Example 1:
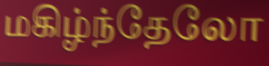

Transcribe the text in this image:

மகிழ்ந்தேலோ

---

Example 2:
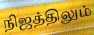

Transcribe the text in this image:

நிஜத்திலும்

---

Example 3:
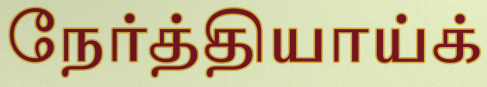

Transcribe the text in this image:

நேர்த்தியாய்க்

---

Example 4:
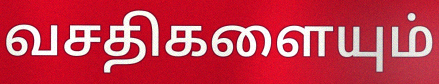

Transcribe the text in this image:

வசதிகளையும்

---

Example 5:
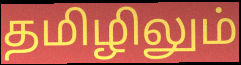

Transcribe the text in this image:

தமிழிலும்